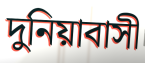
দুনিয়াবাসী